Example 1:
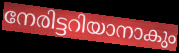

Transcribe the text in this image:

നേരിട്ടറിയാനാകും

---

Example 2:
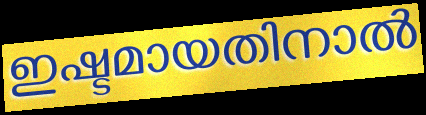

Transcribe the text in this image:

ഇഷ്ടമായതിനാൽ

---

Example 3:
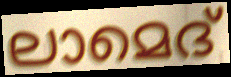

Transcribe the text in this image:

ലാമെദ്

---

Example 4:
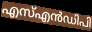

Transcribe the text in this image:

എസ്എൻഡിപി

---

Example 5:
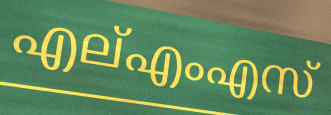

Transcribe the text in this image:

എല്എംഎസ്